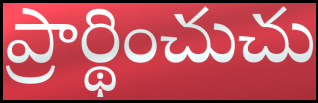
ప్రార్థించుచు